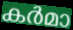
കർമാ